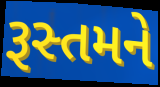
રૂસ્તમને